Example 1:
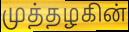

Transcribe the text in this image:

முத்தழகின்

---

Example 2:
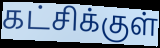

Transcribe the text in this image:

கட்சிக்குள்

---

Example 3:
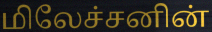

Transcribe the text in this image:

மிலேச்சனின்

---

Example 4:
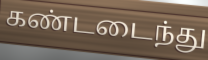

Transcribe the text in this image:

கண்டடைந்து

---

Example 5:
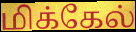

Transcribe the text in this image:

மிக்கேல்